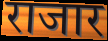
राजार